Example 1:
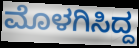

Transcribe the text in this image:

ಮೊಳಗಿಸಿದ್ದ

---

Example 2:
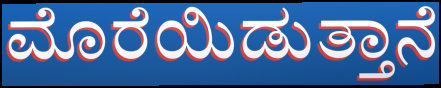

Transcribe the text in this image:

ಮೊರೆಯಿಡುತ್ತಾನೆ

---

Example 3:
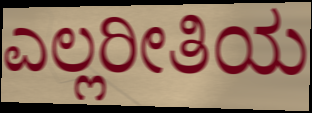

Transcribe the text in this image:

ಎಲ್ಲರೀತಿಯ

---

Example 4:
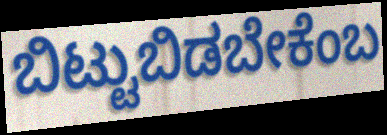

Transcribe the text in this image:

ಬಿಟ್ಟುಬಿಡಬೇಕೆಂಬ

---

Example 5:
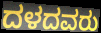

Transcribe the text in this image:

ದಳದವರು